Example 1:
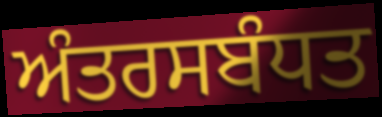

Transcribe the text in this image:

ਅੰਤਰਸਬੰਧਤ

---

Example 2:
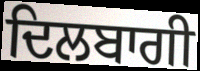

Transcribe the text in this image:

ਦਿਲਬਾਗੀ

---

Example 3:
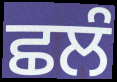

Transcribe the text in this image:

ਛਲੰ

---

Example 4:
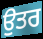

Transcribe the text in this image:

ਉਤਰ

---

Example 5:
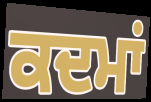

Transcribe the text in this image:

ਕਦਮਾਂ